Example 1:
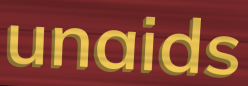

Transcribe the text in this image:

unaids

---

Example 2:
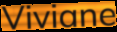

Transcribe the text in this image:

Viviane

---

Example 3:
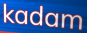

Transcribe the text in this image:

kadam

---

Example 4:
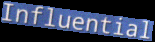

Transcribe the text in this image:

Influential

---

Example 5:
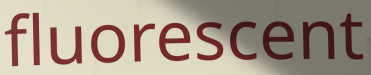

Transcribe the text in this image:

fluorescent